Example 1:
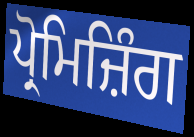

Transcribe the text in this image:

ਪ੍ਰੋਮਿਜ਼ਿੰਗ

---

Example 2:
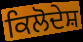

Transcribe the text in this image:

ਕਿਲੋਦੇਸ਼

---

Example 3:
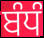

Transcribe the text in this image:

ਬੰਧੰ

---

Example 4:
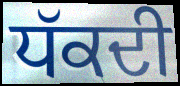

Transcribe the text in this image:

ਧੱਕਦੀ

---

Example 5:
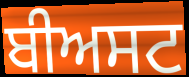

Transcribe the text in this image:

ਬੀਅਸਟ